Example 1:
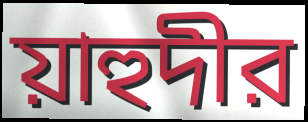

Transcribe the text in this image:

য়াহুদীর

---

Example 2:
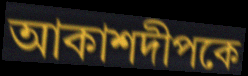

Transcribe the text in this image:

আকাশদীপকে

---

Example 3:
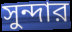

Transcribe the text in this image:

সুন্দার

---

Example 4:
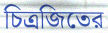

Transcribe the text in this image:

চিত্রজিতের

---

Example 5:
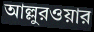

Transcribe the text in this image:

আল্লুরওয়ার